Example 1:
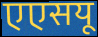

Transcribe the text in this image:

एएसयू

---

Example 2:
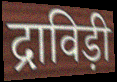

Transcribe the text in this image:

द्राविड़ी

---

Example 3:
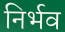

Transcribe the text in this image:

निर्भव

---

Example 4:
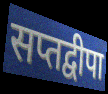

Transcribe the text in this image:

सप्तद्वीपा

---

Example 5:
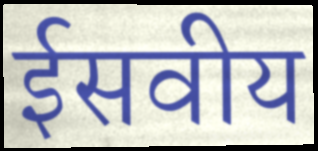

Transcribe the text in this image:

ईसवीय